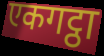
एकगट्ठा